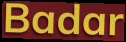
Badar